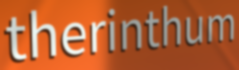
therinthum